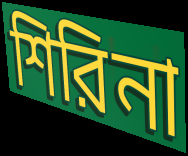
শিরিনা